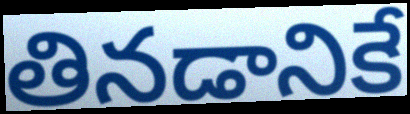
తినడానికే